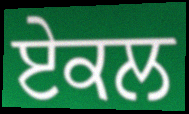
ਏਕਲ